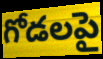
గోడలపై